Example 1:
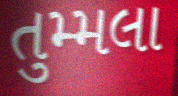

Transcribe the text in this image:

તુમ્મલા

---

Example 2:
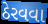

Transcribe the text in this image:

ઠેરવવા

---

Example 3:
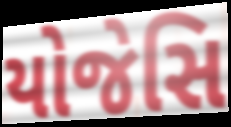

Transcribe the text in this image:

યોજેસિ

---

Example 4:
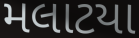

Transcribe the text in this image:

મલાટયા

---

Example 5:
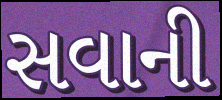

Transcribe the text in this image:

સવાની